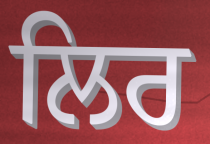
ਲਿਰ